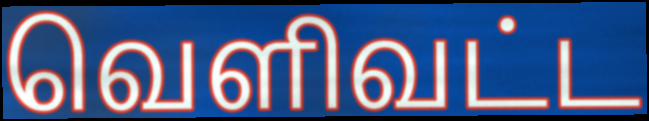
வெளிவட்ட